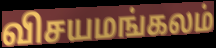
விசயமங்கலம்